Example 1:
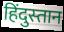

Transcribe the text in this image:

हिंदुस्‍तान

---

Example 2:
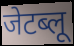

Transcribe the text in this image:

जेटब्लू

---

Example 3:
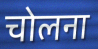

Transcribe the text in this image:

चोलना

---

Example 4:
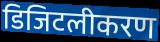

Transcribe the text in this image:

डिजिटलीकरण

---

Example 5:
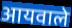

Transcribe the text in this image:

आयवाले